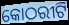
କୋଠରୀଟି